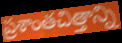
ప్రశాంతచిత్తాన్ని